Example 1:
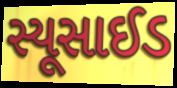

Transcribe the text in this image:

સ્યૂસાઈડ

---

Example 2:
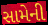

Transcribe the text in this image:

સામેની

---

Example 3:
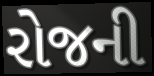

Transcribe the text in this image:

રોજની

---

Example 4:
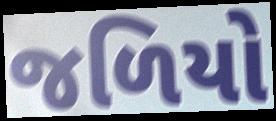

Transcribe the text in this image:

જળિયો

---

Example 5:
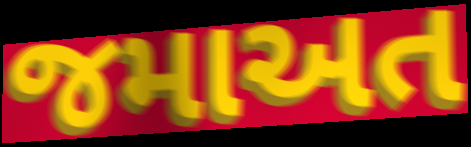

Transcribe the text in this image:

જમાઅત